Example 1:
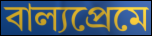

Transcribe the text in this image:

বাল্যপ্রেমে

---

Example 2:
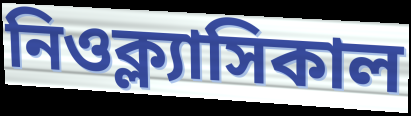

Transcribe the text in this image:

নিওক্ল্যাসিকাল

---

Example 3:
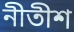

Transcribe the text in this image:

নীতীশ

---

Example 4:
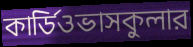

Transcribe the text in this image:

কার্ডিওভাসকুলার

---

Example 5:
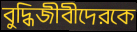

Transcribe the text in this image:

বুদ্ধিজীবীদেরকে